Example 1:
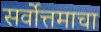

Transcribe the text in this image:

सर्वोत्तमाचा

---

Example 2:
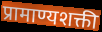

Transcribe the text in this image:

प्रामाण्यशक्ती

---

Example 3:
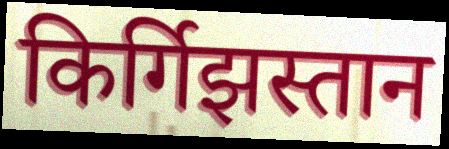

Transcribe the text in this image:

किर्गिझस्तान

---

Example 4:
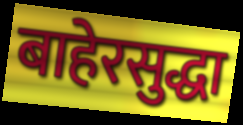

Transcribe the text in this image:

बाहेरसुद्धा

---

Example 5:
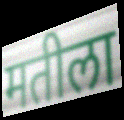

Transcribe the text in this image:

मतीला